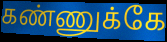
கண்ணுக்கே